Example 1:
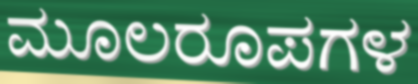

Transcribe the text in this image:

ಮೂಲರೂಪಗಳ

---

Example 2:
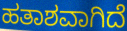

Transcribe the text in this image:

ಹತಾಶವಾಗಿದೆ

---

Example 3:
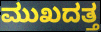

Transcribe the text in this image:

ಮುಖದತ್ತ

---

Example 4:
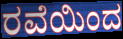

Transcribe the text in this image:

ರವೆಯಿಂದ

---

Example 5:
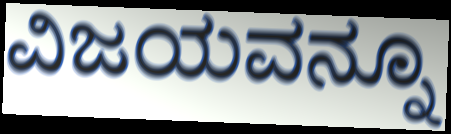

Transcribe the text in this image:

ವಿಜಯವನ್ನೂ